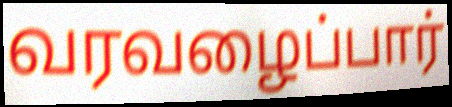
வரவழைப்பார்